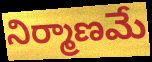
నిర్మాణమే